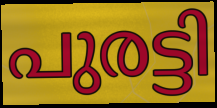
പുരട്ടി